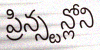
ప్రిన్స్టన్లోని